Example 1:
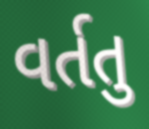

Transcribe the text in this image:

વર્તતુ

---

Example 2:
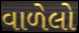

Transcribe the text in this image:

વાળેલો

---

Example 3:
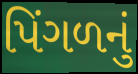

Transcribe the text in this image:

પિંગળનું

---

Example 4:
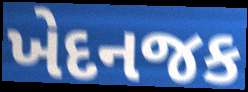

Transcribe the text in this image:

ખેદનજક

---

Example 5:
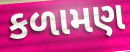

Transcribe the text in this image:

કળામણ